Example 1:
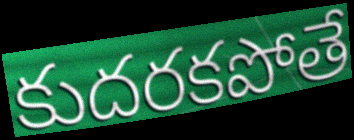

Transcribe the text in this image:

కుదరకపోతే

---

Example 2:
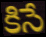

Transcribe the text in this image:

కిసే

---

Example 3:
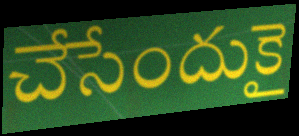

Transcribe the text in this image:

చేసేందుకై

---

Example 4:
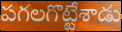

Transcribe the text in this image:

పగలగొట్టేశాడు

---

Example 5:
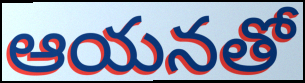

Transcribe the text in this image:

ఆయనతో